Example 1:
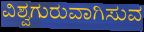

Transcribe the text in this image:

ವಿಶ್ವಗುರುವಾಗಿಸುವ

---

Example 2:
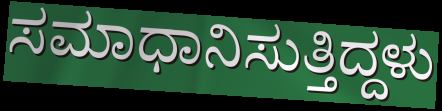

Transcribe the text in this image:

ಸಮಾಧಾನಿಸುತ್ತಿದ್ದಳು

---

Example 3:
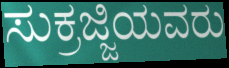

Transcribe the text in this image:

ಸುಕ್ರಜ್ಜಿಯವರು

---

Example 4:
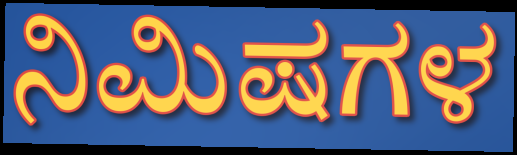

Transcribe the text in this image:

ನಿಮಿಷಗಳ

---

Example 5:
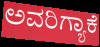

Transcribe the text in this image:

ಅವರಿಗ್ಯಾಕೆ